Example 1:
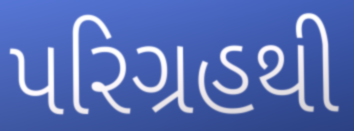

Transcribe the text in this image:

પરિગ્રહથી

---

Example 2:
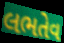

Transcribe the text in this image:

લભતેવ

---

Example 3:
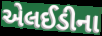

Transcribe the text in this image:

એલઈડીના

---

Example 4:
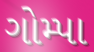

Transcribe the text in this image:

ગોમ્પા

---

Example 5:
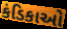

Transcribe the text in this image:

કંડિકાઓ